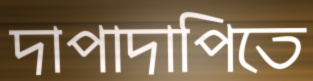
দাপাদাপিতে